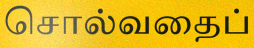
சொல்வதைப்